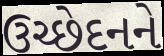
ઉચ્છેદનને